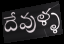
దేవుళ్ళ